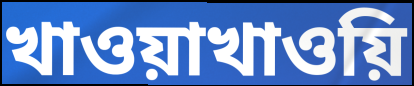
খাওয়াখাওয়ি